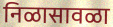
निळासावळा